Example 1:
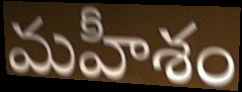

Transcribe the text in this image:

మహీశం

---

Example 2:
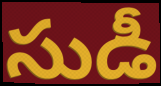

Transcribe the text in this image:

సుడీ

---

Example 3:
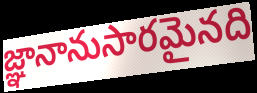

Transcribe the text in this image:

జ్ఞానానుసారమైనది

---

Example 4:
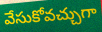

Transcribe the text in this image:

వేసుకోవచ్చుగా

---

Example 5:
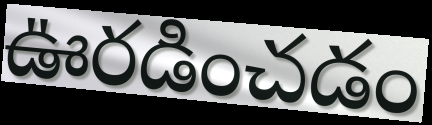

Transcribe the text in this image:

ఊరడించడం